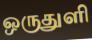
ஒருதுளி